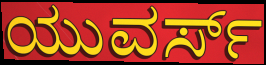
ಯುವರ್ಸ್